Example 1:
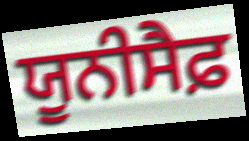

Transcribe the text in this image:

ਯੂਨੀਸੈਫ਼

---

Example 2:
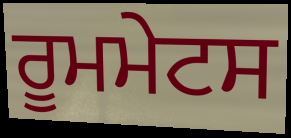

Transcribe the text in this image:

ਰੂਮਮੇਟਸ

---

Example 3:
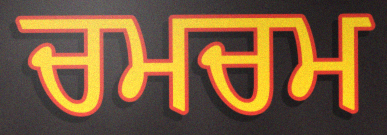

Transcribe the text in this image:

ਚਮਚਮ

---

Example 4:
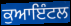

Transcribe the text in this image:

ਕੁਆਇੰਟਲ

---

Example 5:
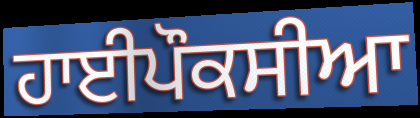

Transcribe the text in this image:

ਹਾਈਪੌਕਸੀਆ